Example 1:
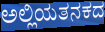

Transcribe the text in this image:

ಅಲ್ಲಿಯತನಕದ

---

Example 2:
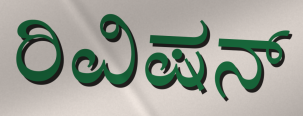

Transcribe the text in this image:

ರಿವಿಷನ್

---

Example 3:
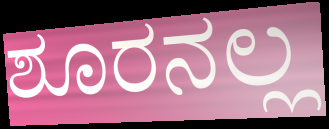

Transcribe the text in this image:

ಶೂರನಲ್ಲ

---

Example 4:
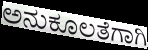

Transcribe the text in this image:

ಅನುಕೂಲತೆಗಾಗಿ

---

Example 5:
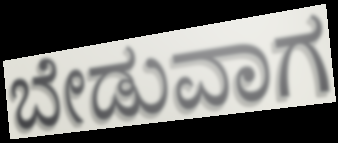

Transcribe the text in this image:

ಬೇಡುವಾಗ